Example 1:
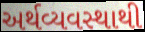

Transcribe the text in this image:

અર્થવ્યવસ્થાથી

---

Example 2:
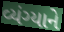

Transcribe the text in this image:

વ્યંગ્યાને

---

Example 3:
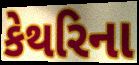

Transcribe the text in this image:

કેથરિના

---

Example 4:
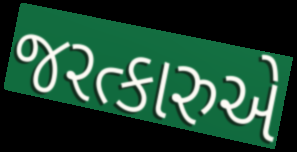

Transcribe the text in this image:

જરત્કારુએ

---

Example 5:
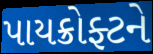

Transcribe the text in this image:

પાયક્રોફ્ટને